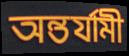
অন্তর্যামী